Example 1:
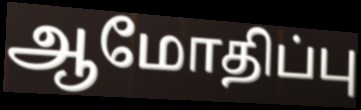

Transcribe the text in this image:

ஆமோதிப்பு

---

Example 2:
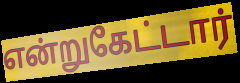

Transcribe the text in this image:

என்றுகேட்டார்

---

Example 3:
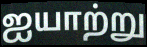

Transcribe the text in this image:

ஐயாற்று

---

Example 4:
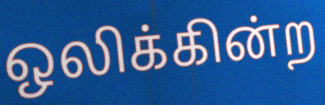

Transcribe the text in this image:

ஒலிக்கின்ற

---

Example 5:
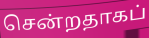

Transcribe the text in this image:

சென்றதாகப்